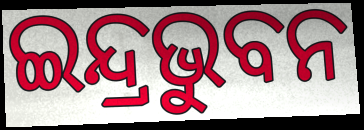
ଇନ୍ଦ୍ରଭୁବନ